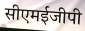
सीएमईजीपी